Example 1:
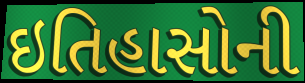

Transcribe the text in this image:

ઇતિહાસોની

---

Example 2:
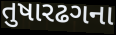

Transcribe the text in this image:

તુષારઢગના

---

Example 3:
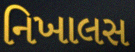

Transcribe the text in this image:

નિખાલસ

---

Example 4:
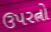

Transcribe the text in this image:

ઉપરત્નો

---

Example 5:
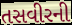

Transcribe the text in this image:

તસવીરની